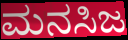
ಮನಸಿಜ